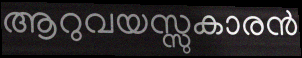
ആറുവയസ്സുകാരൻ